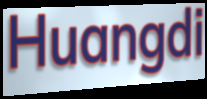
Huangdi